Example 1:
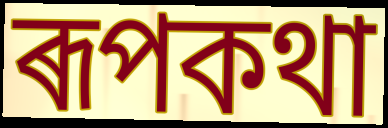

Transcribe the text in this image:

ৰূপকথা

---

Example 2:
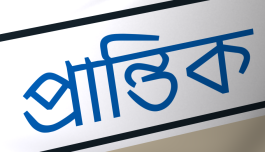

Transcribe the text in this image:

প্ৰান্তিক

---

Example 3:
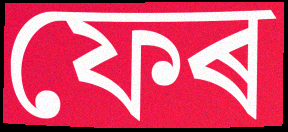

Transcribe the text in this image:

ফেৰ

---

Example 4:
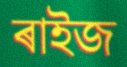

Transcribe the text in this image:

ৰাইজ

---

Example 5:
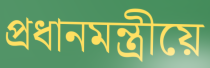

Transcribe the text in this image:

প্ৰধানমন্ত্ৰীয়ে